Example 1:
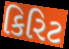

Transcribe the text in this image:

કિરિટ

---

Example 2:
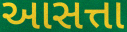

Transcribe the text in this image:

આસત્તા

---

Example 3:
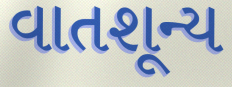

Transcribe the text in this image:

વાતશૂન્ય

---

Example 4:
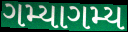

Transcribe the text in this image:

ગમ્યાગમ્ય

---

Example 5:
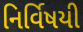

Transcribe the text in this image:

નિર્વિષયી